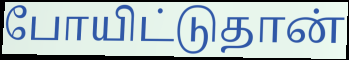
போயிட்டுதான்